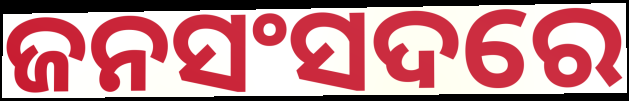
ଜନସଂସଦରେ